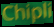
Chipli